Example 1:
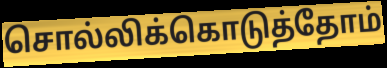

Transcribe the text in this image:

சொல்லிக்கொடுத்தோம்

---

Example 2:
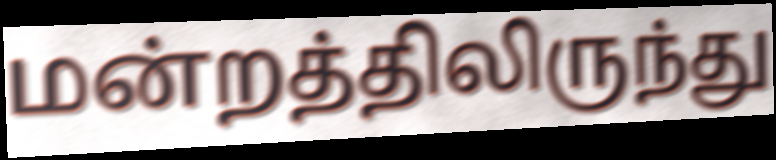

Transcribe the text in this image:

மன்றத்திலிருந்து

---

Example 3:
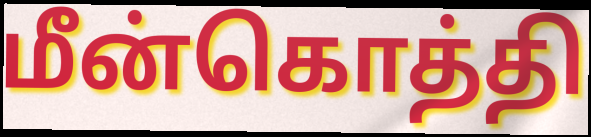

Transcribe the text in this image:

மீன்கொத்தி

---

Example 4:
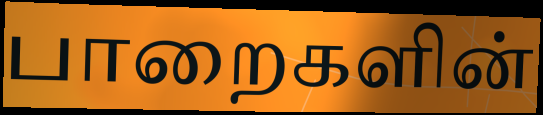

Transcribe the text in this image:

பாறைகளின்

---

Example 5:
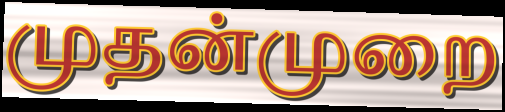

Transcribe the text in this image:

முதன்முறை